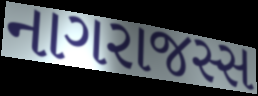
નાગરાજસ્સ